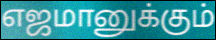
எஜமானுக்கும்